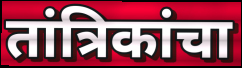
तांत्रिकांचा